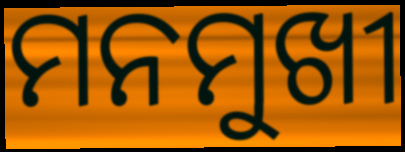
ମନମୁଖୀ